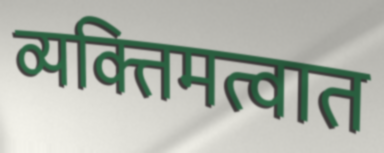
व्यक्तिमत्वात